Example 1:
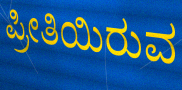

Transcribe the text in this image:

ಪ್ರೀತಿಯಿರುವ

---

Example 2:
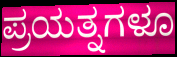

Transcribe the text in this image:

ಪ್ರಯತ್ನಗಳೂ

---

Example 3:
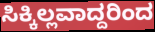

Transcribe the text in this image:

ಸಿಕ್ಕಿಲ್ಲವಾದ್ದರಿಂದ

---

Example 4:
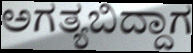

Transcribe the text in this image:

ಅಗತ್ಯಬಿದ್ದಾಗ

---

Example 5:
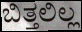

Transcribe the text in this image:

ಬಿತ್ತಲಿಲ್ಲ